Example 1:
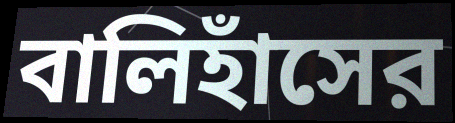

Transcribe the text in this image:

বালিহাঁসের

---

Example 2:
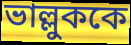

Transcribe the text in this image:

ভাল্লুককে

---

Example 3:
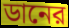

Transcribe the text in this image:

ডানের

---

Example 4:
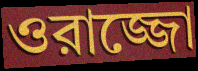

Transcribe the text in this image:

ওরাজ্জো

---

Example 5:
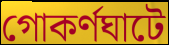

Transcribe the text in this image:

গোকর্ণঘাটে